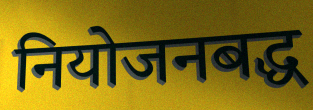
नियोजनबद्ध